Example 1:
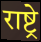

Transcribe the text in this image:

राष्ट्रे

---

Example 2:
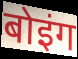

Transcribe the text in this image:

बोइंग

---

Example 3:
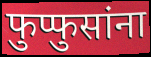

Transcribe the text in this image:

फुप्फुसांना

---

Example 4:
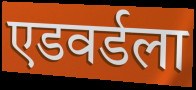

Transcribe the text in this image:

एडवर्डला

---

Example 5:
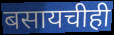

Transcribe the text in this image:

बसायचीही